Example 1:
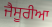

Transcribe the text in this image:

ਜੈਸੂਰੀਆ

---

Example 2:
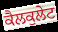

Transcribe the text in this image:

ਕੈਲਕੁਲੇਟ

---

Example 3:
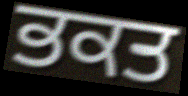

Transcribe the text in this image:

ਭਕਤ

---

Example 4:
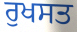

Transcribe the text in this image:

ਰੁਖਸਤ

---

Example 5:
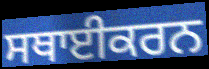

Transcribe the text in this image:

ਸਥਾਈਕਰਨ